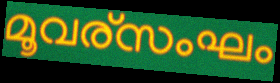
മൂവര്സംഘം